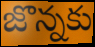
జొన్నకు